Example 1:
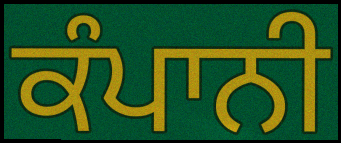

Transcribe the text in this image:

ਕੰਪਾਨੀ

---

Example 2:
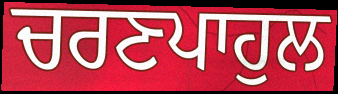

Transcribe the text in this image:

ਚਰਣਪਾਹੁਲ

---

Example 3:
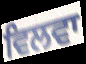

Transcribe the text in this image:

ਵਿਲਵਾ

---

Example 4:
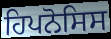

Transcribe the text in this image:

ਹਿਪਨੋਸਿਸ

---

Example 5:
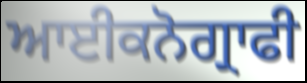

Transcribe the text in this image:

ਆਈਕਨੋਗ੍ਰਾਫੀ